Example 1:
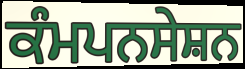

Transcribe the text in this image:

ਕੰਮਪਨਸੇਸ਼ਨ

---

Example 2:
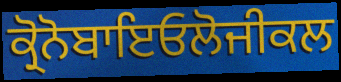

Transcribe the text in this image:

ਕ੍ਰੋਨੋਬਾਇਓਲੋਜੀਕਲ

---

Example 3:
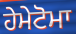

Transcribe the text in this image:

ਹੇਮੇਟੋਮਾ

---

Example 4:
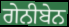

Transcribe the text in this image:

ਗੇਨੀਬੇਨ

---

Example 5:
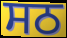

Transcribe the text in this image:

ਸਠ